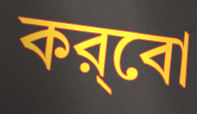
কর্‌বো